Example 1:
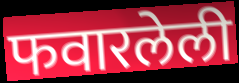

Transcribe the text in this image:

फवारलेली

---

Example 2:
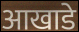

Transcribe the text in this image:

आखाडे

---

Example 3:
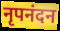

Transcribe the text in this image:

नृपनंदन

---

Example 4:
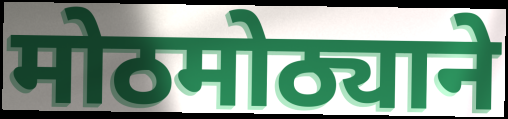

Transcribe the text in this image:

मोठमोठ्याने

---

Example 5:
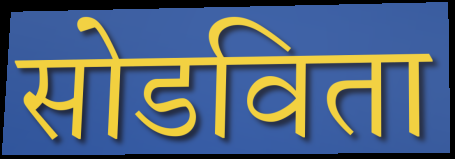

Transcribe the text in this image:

सोडविता